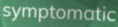
symptomatic